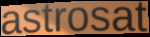
astrosat